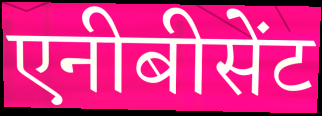
एनीबीसेंट